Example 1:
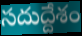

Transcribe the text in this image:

సదుద్దేశం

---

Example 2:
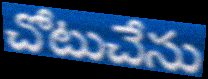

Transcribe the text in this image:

చోటుచేసు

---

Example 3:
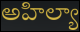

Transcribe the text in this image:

అహిల్యా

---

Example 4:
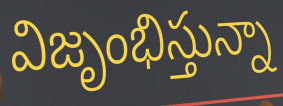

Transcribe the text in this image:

విజృంభిస్తున్నా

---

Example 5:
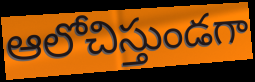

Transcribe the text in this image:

ఆలోచిస్తుండగా